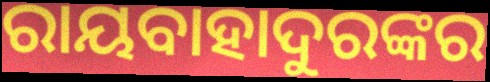
ରାୟବାହାଦୁରଙ୍କର